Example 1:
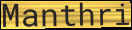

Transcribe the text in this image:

Manthri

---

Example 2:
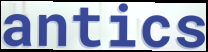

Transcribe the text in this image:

antics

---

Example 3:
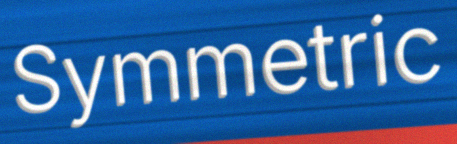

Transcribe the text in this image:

Symmetric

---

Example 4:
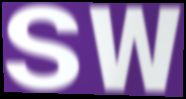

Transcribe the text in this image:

sw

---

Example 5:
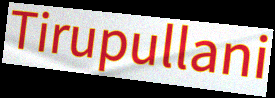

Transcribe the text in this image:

Tirupullani